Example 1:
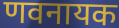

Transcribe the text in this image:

णवनायक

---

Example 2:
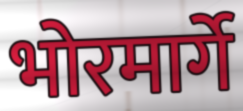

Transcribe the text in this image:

भोरमार्गे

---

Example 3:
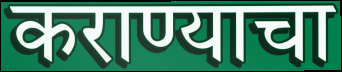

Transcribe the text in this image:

कराण्याचा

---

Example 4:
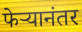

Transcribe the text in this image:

फेऱ्यानंतर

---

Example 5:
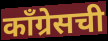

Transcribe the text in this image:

काँग्रेसची